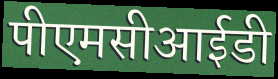
पीएमसीआईडी